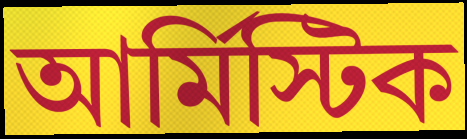
আর্মিস্টিক